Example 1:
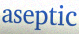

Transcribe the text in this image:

aseptic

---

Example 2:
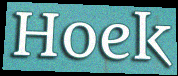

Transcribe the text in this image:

Hoek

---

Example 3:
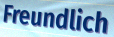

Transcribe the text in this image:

Freundlich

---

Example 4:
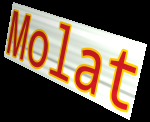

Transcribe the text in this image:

Molat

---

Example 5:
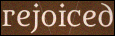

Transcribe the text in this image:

rejoiced